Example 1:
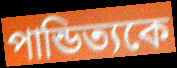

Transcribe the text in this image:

পান্ডিত্যকে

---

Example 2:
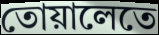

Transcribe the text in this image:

তোয়ালেতে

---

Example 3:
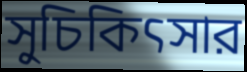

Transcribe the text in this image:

সুচিকিৎসার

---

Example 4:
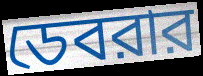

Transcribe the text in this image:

ডেবরার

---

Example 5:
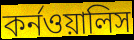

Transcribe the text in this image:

কর্নওয়ালিস